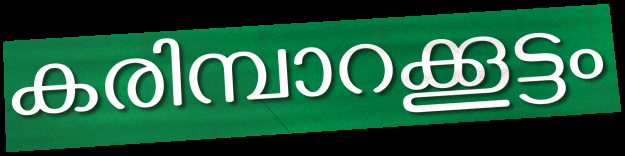
കരിമ്പാറക്കൂട്ടം